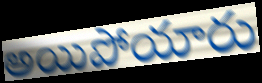
అయిపోయారు